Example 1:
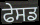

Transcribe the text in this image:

ਫੇਸਡ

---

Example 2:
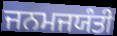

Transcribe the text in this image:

ਜਨਮਜਯੰਤੀ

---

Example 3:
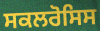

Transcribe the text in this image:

ਸਕਲਰੋਸਿਸ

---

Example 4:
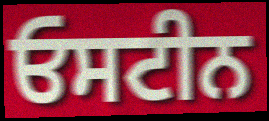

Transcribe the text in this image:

ਓਸਟੀਨ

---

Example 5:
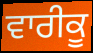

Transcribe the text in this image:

ਵਾਰੀਕੂ